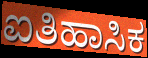
ಐತಿಹಾಸಿಕ